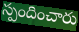
స్పందించారు